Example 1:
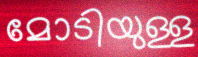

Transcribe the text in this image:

മോടിയുള്ള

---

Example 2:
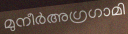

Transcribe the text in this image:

മുനീർഅഗ്രഗാമി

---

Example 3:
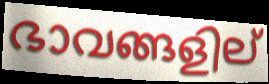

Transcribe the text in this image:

ഭാവങ്ങളില്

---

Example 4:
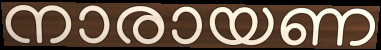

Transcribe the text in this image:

നാരായണ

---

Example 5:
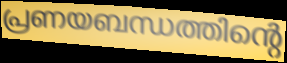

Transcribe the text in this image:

പ്രണയബന്ധത്തിന്റെ